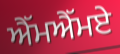
ਐੱਮਐੱਮਏ